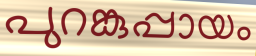
പുറങ്കുപ്പായം